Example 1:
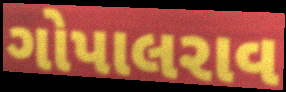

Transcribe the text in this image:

ગોપાલરાવ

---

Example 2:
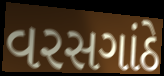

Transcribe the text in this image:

વરસગાંઠે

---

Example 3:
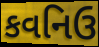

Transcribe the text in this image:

કવનિઉ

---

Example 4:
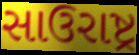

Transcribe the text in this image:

સાઉરાષ્ટ્ર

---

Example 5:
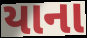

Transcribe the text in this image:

યાના